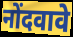
नोंदवावे